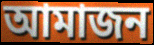
আমাজন